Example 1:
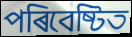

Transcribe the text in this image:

পৰিবেষ্টিত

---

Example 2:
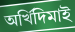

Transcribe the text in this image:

অৰ্খিদিমাই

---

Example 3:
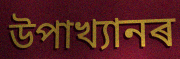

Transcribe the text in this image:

উপাখ্যানৰ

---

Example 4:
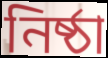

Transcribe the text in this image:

নিষ্ঠা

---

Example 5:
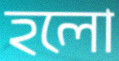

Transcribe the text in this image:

হলো